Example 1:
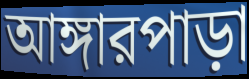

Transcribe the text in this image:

আঙ্গারপাড়া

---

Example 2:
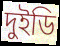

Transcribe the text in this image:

দুইডি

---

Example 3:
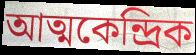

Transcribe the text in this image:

আত্মকেন্দ্রিক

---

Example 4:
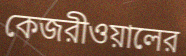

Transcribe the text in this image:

কেজরীওয়ালের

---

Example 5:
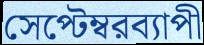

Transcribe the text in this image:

সেপ্টেম্বরব্যাপী